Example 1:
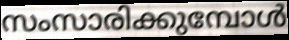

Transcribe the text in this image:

സംസാരിക്കുമ്പോൾ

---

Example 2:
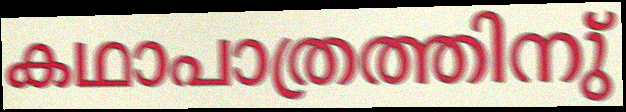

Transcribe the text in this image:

കഥാപാത്രത്തിനു്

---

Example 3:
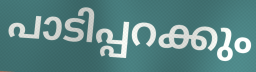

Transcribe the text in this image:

പാടിപ്പറക്കും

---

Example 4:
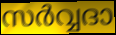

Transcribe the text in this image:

സർവ്വദാ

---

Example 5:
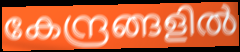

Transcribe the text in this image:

കേന്ദ്രങ്ങളിൽ